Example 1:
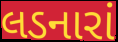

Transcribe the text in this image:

લડનારાં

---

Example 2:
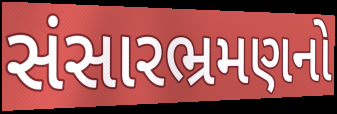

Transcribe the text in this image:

સંસારભ્રમણનો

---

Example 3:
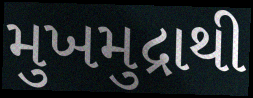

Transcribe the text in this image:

મુખમુદ્રાથી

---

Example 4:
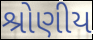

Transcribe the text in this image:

શ્રોણીય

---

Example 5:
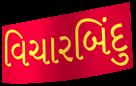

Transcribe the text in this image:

વિચારબિંદુ